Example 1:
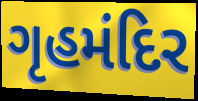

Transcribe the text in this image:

ગૃહમંદિર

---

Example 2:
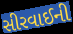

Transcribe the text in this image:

સીરવાઈની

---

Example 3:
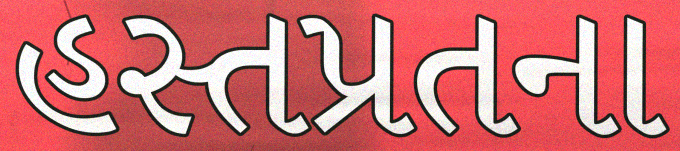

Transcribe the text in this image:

હસ્તપ્રતના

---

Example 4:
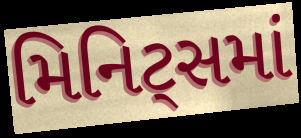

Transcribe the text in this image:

મિનિટ્સમાં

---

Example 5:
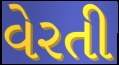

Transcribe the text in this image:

વેરતી